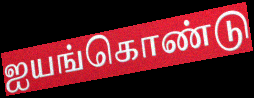
ஐயங்கொண்டு